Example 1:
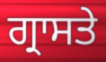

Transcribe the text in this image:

ਗ੍ਰਾਸਤੇ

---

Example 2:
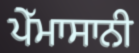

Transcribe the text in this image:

ਪੇੱਮਾਸਾਨੀ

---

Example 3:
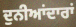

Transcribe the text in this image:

ਦੁਨੀਆਂਦਾਰਾਂ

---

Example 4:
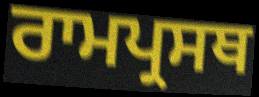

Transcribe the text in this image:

ਰਾਮਪ੍ਰਸਥ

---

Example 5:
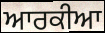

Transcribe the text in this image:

ਆਰਕੀਆ